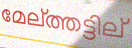
മേല്ത്തട്ടില്